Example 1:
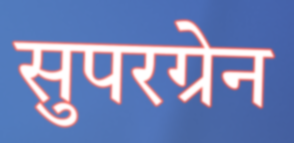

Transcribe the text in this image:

सुपरग्रेन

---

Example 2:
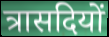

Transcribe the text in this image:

त्रासदियों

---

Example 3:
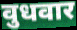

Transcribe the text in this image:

वुधवार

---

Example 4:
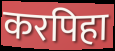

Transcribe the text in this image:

करपिहा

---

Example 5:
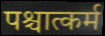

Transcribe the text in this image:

पश्चात्कर्म